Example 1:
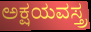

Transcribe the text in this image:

ಅಕ್ಷಯವಸ್ತ್ರ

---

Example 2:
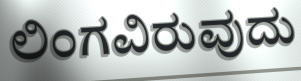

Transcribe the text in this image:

ಲಿಂಗವಿರುವುದು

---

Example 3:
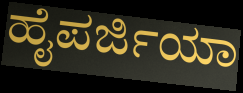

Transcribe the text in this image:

ಹೈಪರ್ಜಿಯಾ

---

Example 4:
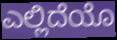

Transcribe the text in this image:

ಎಲ್ಲಿದೆಯೊ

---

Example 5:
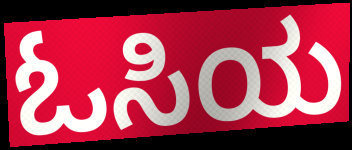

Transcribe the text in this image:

ಓಸಿಯ